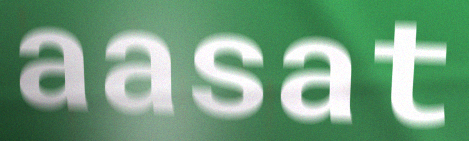
aasat